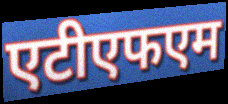
एटीएफएम